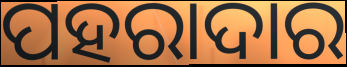
ପହରାଦାର